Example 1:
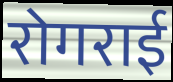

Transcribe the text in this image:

रोगराई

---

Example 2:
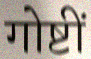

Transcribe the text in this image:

गोष्टीं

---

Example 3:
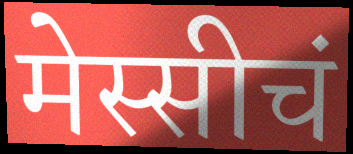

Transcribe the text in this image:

मेस्सीचं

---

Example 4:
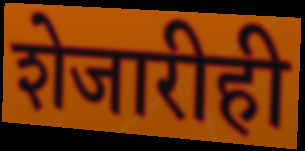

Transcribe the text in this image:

शेजारीही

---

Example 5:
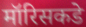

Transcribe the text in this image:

मॉरिसकडे